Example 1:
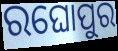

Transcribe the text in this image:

ରଘୋପୁର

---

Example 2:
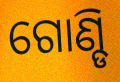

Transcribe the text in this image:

ଗୋଣ୍ଡି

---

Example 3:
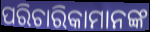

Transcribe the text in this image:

ପରିଚାରିକାମାନଙ୍କ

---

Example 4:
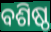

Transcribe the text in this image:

ବଶିଷ୍ଠ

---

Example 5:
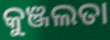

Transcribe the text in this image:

କୁଞ୍ଜଲତା